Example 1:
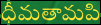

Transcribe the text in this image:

ధీమతామపి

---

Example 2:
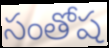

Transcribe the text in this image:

సంతోష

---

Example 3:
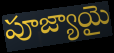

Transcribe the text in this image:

పూజ్యాయై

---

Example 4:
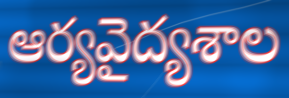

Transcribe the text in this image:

ఆర్యవైద్యశాల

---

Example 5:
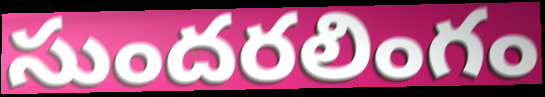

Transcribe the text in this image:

సుందరలింగం